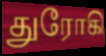
துரோகி